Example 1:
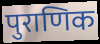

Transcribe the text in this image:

पुराणिक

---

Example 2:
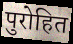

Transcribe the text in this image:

पुरोहित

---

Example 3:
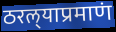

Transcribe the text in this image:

ठरल्याप्रमाणं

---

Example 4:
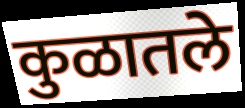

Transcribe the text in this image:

कुळातले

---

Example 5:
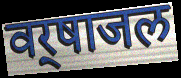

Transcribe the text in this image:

वर्षाजल